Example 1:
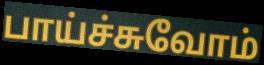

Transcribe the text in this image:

பாய்ச்சுவோம்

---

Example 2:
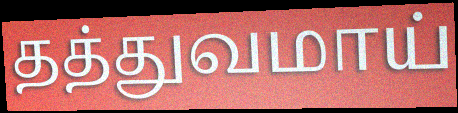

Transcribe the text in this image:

தத்துவமாய்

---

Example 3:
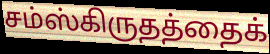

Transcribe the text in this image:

சம்ஸ்கிருதத்தைக்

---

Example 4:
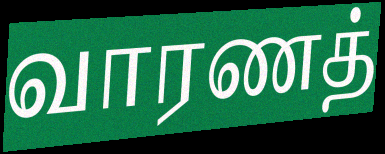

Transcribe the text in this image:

வாரணத்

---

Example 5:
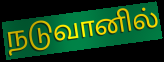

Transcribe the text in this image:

நடுவானில்